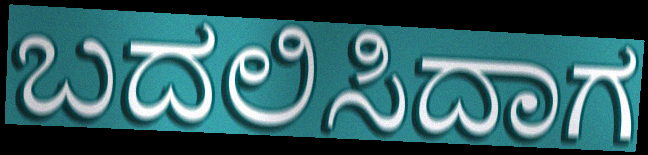
ಬದಲಿಸಿದಾಗ